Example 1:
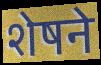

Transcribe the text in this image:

शेषने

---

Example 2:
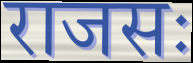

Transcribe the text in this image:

राजसः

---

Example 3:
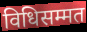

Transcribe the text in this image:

विधिसम्मत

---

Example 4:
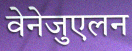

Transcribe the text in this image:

वेनेजुएलन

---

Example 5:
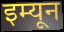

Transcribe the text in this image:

इम्‍यून